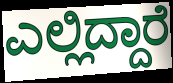
ಎಲ್ಲಿದ್ದಾರೆ